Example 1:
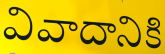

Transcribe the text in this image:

వివాదానికి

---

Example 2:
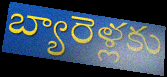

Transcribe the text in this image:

బ్యారెళ్లకు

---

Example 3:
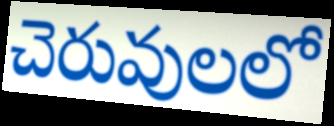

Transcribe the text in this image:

చెరువులలో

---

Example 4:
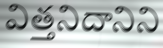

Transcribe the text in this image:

విత్తనిదానిని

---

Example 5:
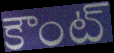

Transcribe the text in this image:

కౌంట్